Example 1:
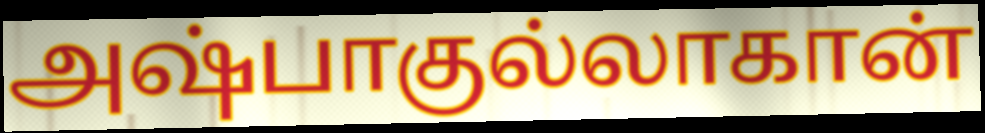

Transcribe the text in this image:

அஷ்பாகுல்லாகான்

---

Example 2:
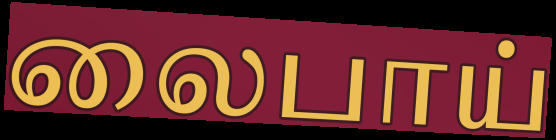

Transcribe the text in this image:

லைபாய்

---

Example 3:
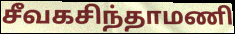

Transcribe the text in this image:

சீவகசிந்தாமணி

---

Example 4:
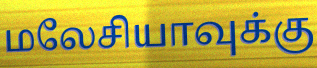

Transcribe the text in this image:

மலேசியாவுக்கு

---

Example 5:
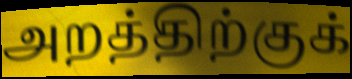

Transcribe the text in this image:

அறத்திற்குக்